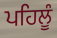
ਪਹਿਲੂੰ